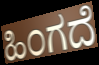
ಹಿಂಗದೆ